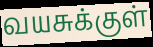
வயசுக்குள்